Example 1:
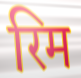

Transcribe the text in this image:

रिम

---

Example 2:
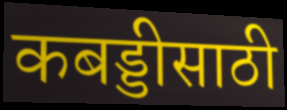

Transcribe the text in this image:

कबड्डीसाठी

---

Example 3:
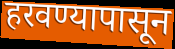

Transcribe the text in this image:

हरवण्यापासून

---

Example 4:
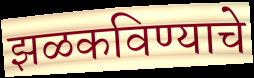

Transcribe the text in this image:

झळकविण्याचे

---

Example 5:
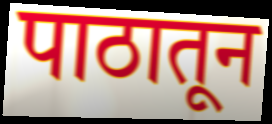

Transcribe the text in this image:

पाठातून